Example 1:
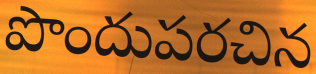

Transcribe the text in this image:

పొందుపరచిన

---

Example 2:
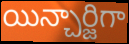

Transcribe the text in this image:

యిన్చార్జిగా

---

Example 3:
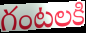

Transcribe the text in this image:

గంటలకి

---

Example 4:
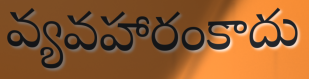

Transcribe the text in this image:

వ్యవహారంకాదు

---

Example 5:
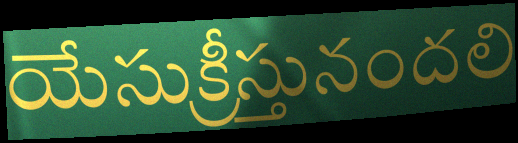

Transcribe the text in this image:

యేసుక్రీస్తునందలి